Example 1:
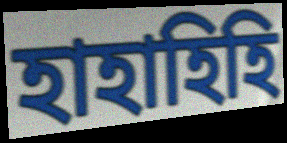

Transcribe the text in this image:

হাহাহিহি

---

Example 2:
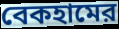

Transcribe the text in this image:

বেকহামের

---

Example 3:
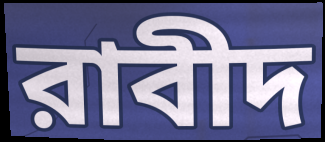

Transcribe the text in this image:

রাবীদ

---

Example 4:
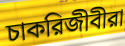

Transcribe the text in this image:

চাকরিজীবীরা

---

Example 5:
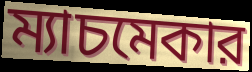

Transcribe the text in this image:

ম্যাচমেকার